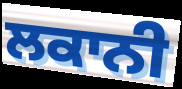
ਲਕਾਨੀ